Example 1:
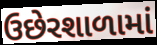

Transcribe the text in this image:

ઉછેરશાળામાં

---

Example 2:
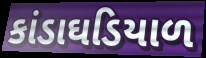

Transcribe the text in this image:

કાંડાઘડિયાળ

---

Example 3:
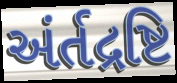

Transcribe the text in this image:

અંર્તદ્રષ્ટિ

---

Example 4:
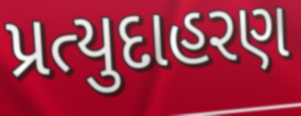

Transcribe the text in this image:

પ્રત્યુદાહરણ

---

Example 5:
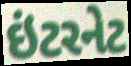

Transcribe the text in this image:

ઇંટરનેટ